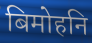
बिमोहनि